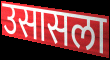
उसासला